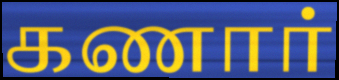
கணார்